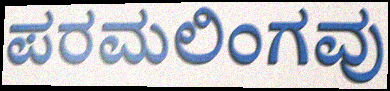
ಪರಮಲಿಂಗವು